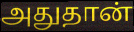
அதுதான்